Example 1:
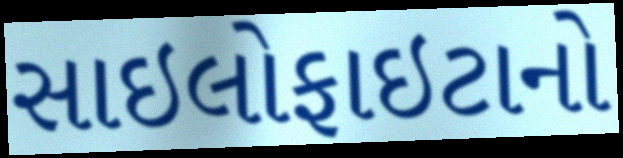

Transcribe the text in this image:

સાઇલોફાઇટાનો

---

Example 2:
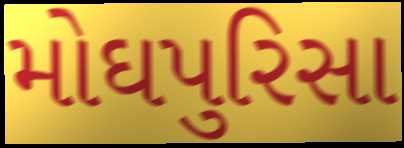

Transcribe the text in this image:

મોઘપુરિસા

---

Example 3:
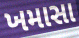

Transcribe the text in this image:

ખમાસા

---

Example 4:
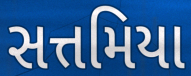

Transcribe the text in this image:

સત્તમિયા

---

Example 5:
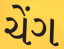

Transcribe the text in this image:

ચેંગ